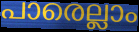
പാരെല്ലാം